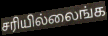
சரியில்லைங்க